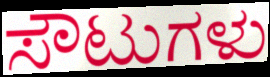
ಸೌಟುಗಳು